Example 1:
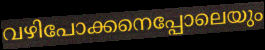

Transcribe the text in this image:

വഴിപോക്കനെപ്പോലെയും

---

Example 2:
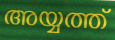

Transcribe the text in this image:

അയ്യത്ത്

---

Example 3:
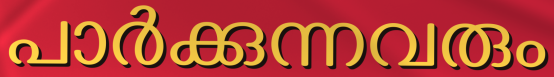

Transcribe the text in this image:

പാർക്കുന്നവരും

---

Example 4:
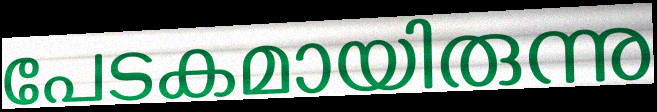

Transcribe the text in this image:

പേടകമായിരുന്നു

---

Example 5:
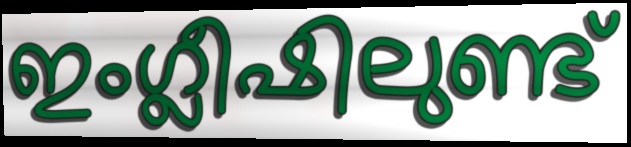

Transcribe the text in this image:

ഇംഗ്ലീഷിലുണ്ട്